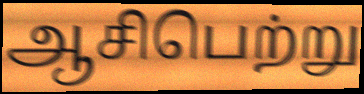
ஆசிபெற்று